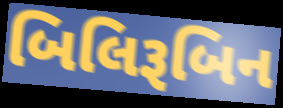
બિલિરૂબિન